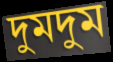
দুমদুম